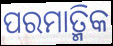
ପରମାତ୍ମିକ